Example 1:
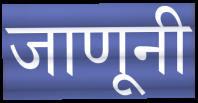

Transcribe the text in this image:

जाणूनी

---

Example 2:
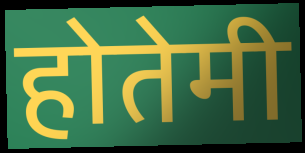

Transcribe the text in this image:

होतेमी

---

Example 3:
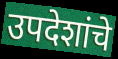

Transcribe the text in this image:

उपदेशांचे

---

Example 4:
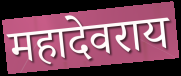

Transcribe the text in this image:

महादेवराय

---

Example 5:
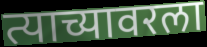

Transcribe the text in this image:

त्याच्यावरला